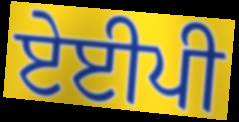
ਏਈਪੀ